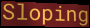
Sloping